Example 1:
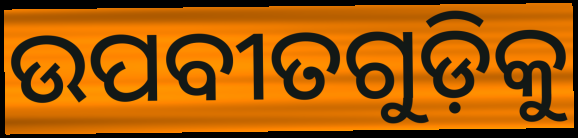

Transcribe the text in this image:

ଉପବୀତଗୁଡ଼ିକୁ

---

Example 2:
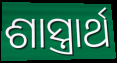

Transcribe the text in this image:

ଶାସ୍ତ୍ରାର୍ଥ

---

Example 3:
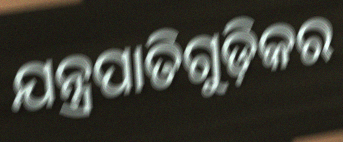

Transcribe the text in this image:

ଯନ୍ତ୍ରପାତିଗୁଡ଼ିକର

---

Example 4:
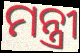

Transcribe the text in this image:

ମନ୍ତ୍ରୀ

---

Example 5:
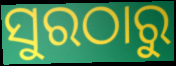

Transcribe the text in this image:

ସୁରଠାରୁ